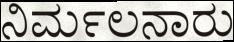
ನಿರ್ಮಲನಾರು